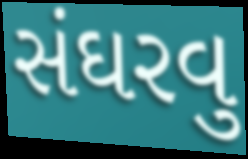
સંઘરવુ